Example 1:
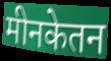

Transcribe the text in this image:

मीनकेतन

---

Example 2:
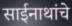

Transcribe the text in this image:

साईनाथांचे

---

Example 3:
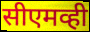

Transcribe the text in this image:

सीएमव्ही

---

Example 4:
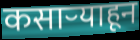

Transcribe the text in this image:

कसाऱ्याहून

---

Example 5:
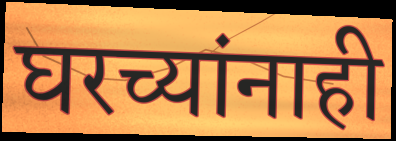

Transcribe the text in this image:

घरच्यांनाही